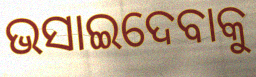
ଭସାଇଦେବାକୁ